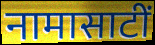
नामासाटीं